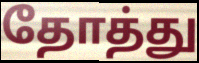
தோத்து